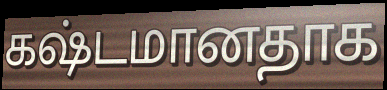
கஷ்டமானதாக